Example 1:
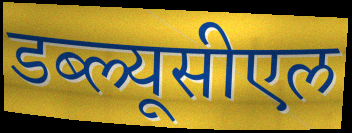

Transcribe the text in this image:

डब्ल्यूसीएल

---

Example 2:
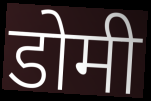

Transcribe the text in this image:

डोमी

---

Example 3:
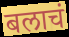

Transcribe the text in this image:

बलाचं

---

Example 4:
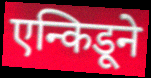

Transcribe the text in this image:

एन्किडूने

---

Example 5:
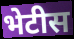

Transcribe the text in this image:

भेटीस